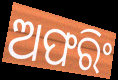
ଅଫରିଂ